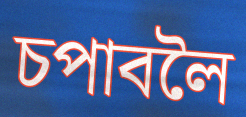
চপাবলৈ